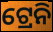
ଟ୍ରେନି